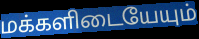
மக்களிடையேயும்